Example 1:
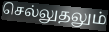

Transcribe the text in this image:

செல்லுதலும்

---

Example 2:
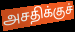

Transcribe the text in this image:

அசதிக்குச்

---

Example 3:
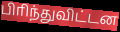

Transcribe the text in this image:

பிரிந்துவிட்டன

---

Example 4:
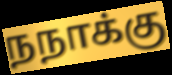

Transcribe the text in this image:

நநாக்கு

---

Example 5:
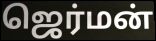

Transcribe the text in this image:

ஜெர்மன்